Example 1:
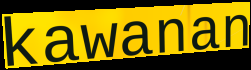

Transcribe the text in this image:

kawanan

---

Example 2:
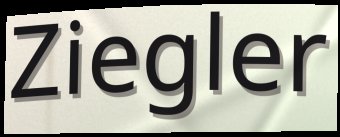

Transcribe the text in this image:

Ziegler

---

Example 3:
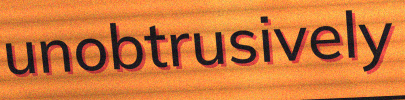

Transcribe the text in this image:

unobtrusively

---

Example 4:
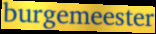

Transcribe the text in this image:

burgemeester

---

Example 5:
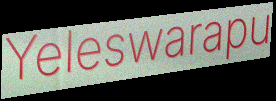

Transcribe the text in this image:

Yeleswarapu